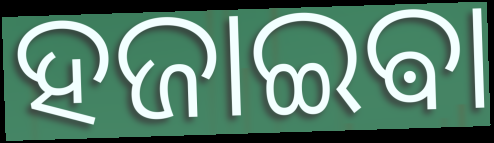
ହଜାଇଵା